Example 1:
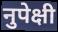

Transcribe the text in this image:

नुपेक्षी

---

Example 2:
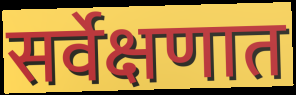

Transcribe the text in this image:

सर्वेक्षणात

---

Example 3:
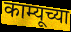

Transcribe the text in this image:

काम्यूच्या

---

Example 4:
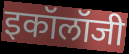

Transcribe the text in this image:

इकॉलॉजी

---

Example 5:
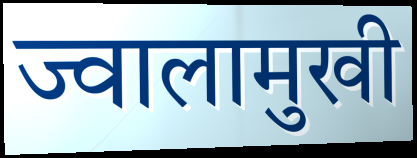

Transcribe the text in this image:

ज्वालामुखी